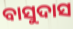
ବାସୁଦାସ